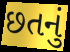
છતનું